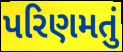
પરિણમતું